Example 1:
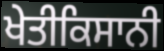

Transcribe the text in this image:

ਖੇਤੀਕਿਸਾਨੀ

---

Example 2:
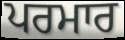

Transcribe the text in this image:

ਪਰਮਾਰ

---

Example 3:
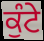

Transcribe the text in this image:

ਕੁੰਟੇ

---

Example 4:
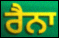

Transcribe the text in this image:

ਰੈਨਾ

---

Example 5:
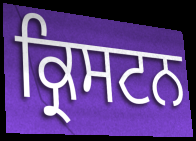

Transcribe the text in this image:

ਕ੍ਰਿਸਟਨ